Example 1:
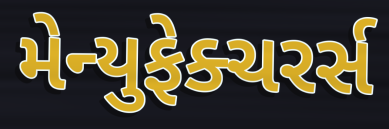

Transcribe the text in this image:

મેન્યુફેક્ચરર્સ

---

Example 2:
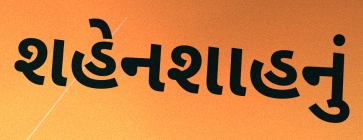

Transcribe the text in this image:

શહેનશાહનું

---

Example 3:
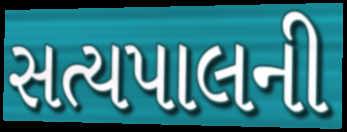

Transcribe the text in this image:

સત્યપાલની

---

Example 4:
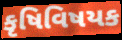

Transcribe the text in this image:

કૃષિવિષયક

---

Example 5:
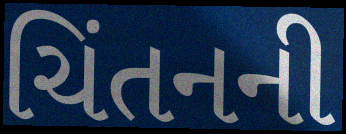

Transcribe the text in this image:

ચિંતનની